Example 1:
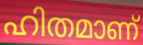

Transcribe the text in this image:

ഹിതമാണ്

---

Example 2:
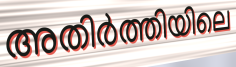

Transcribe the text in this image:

അതിർത്തിയിലെ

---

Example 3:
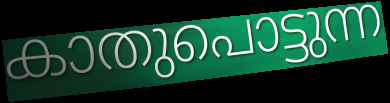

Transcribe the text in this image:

കാതുപൊട്ടുന്ന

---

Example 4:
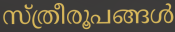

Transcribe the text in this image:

സ്ത്രീരൂപങ്ങൾ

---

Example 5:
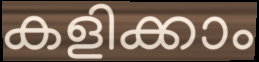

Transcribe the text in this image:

കളിക്കാം